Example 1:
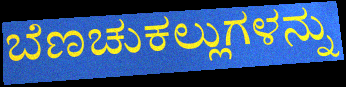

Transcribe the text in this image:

ಬೆಣಚುಕಲ್ಲುಗಳನ್ನು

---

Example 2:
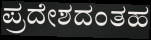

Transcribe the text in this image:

ಪ್ರದೇಶದಂತಹ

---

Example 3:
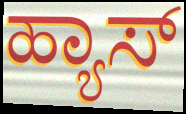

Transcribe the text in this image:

ಹ್ಯಾಸ್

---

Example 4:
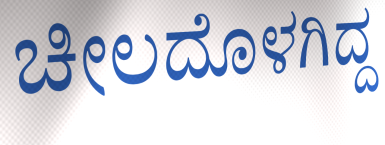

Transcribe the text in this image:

ಚೀಲದೊಳಗಿದ್ದ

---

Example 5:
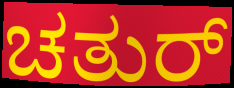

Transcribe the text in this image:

ಚತುರ್